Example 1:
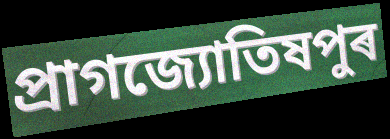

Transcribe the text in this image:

প্ৰাগজ্যোতিষপুৰ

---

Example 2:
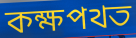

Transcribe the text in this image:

কক্ষপথত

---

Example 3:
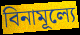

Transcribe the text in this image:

বিনামূল্যে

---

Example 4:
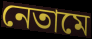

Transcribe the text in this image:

নেতামে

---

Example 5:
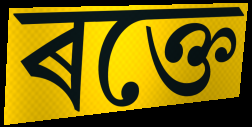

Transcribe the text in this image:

ৰক্তে